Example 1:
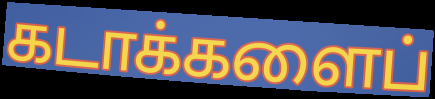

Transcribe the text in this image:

கடாக்களைப்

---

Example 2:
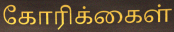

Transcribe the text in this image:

கோரிக்கைள்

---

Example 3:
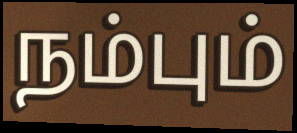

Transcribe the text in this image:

நம்பும்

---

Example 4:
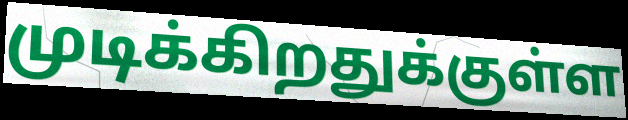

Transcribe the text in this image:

முடிக்கிறதுக்குள்ள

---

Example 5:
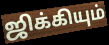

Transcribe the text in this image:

ஜிக்கியும்